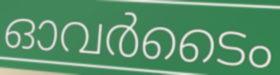
ഓവർടൈം